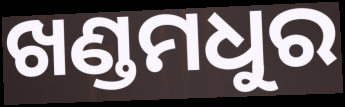
ଖଣ୍ଡମଧୁର